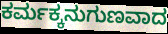
ಕರ್ಮಕ್ಕನುಗುಣವಾದ